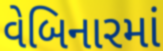
વેબિનારમાં